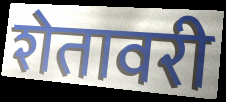
शेतावरी